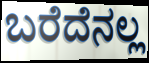
ಬರೆದೆನಲ್ಲ